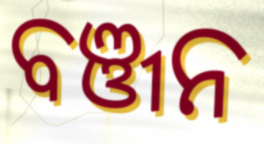
ବଞ୍ଜନ